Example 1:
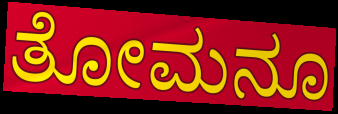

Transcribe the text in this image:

ತೋಮನೂ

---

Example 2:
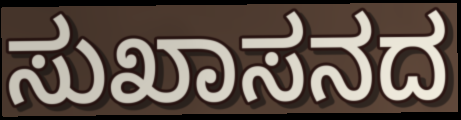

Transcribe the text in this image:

ಸುಖಾಸನದ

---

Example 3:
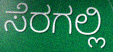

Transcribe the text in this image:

ಸೆರಗಲ್ಲಿ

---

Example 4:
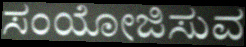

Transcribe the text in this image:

ಸಂಯೋಜಿಸುವ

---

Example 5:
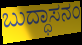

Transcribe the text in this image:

ಬುದ್ಧಾಸನಂ